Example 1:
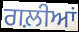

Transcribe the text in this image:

ਗਲ਼ੀਆਂ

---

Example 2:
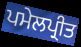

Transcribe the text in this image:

ਪਮੇਲਪ੍ਰੀਤ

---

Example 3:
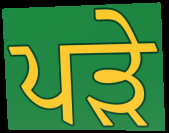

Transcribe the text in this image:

ਪੜੇ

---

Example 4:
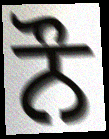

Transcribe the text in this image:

ਨੌ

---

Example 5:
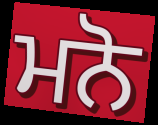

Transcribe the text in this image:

ਮਨੋ